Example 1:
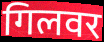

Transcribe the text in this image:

गिलवर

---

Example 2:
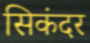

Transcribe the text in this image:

सिकंदर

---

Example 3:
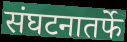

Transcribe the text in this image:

संघटनातर्फे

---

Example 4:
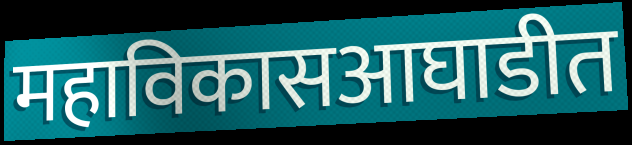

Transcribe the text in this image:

महाविकासआघाडीत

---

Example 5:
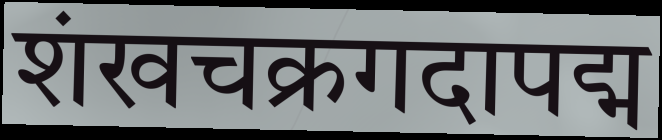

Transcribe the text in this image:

शंखचक्रगदापद्म